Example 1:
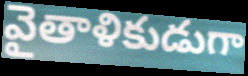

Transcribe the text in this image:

వైతాళికుడుగా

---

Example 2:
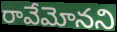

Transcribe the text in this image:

రావేమోనని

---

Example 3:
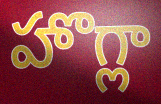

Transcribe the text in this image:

హొగ్లా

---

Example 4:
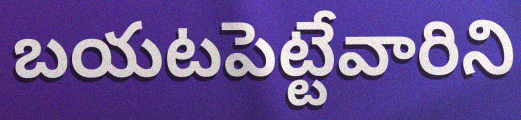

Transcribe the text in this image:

బయటపెట్టేవారిని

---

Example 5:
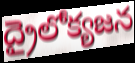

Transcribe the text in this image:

ద్రైలోక్యజన